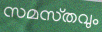
സമസ്‌തവും